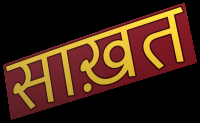
साख़त